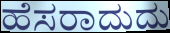
ಹೆಸರಾದುದು